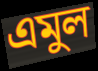
এমুল